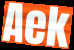
Aek